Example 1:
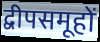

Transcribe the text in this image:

द्वीपसमूहों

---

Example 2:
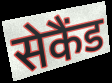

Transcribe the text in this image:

सेकैंड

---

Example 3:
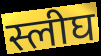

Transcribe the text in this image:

स्लीघ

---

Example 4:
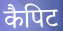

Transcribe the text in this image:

कैपिट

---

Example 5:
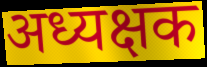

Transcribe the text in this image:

अध्यक्षक